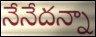
నేనేదన్నా